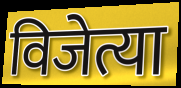
विजेत्या